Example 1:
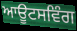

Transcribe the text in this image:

ਆਊਟਸਵਿੰਗ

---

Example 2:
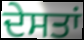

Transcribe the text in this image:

ਦੇਸਤਾਂ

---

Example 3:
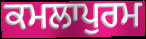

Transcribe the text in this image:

ਕਮਲਾਪੁਰਮ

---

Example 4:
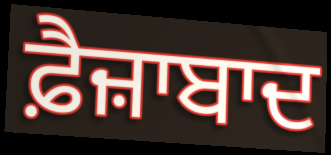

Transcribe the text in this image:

ਫ਼ੈਜ਼ਾਬਾਦ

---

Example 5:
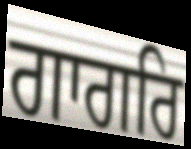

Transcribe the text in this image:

ਗਾਗਰਿ